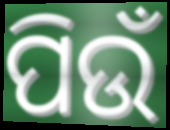
ପିଉଁ